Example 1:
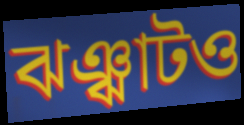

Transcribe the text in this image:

ঝঞ্ঝাটও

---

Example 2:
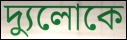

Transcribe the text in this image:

দ্যুলোকে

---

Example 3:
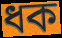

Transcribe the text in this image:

ধক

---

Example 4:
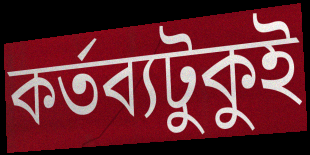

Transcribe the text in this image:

কর্তব্যটুকুই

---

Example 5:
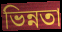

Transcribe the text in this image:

ভিন্নতা